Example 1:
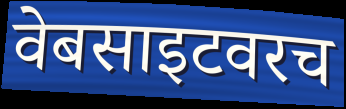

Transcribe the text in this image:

वेबसाइटवरच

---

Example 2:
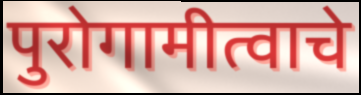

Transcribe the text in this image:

पुरोगामीत्वाचे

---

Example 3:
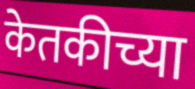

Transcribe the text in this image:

केतकीच्या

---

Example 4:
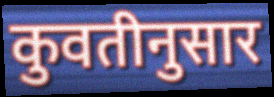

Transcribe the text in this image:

कुवतीनुसार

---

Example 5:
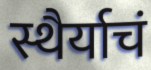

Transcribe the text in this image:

स्थैर्याचं